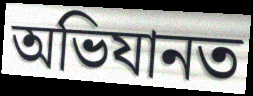
অভিযানত